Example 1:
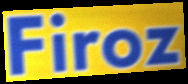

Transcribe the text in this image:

Firoz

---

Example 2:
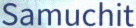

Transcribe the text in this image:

Samuchit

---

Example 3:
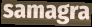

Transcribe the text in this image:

samagra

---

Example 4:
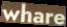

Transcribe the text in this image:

whare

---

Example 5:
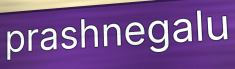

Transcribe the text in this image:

prashnegalu